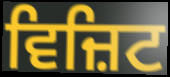
ਵਿਜ਼ਿਟ